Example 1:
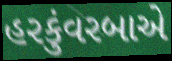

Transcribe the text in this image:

હરકુંવરબાએ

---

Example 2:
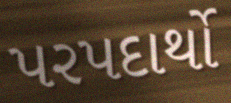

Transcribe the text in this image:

પરપદાર્થો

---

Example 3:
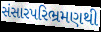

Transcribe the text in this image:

સંસારપરિભ્રમણથી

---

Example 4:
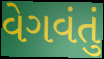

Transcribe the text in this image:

વેગવંતું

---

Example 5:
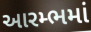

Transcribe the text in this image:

આરમ્ભમાં